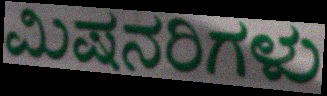
ಮಿಷನರಿಗಳು